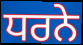
ਧਰਨੇ